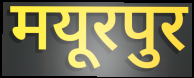
मयूरपुर